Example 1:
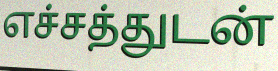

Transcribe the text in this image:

எச்சத்துடன்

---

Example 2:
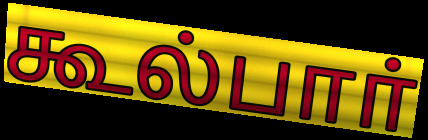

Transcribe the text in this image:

கூல்பார்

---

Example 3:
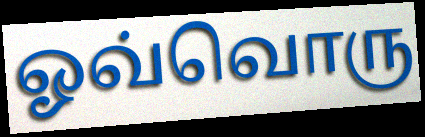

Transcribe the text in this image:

ஓவ்வொரு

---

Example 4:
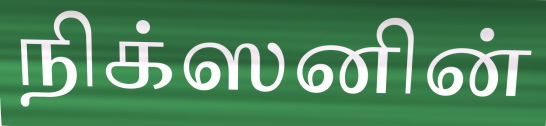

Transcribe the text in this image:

நிக்ஸனின்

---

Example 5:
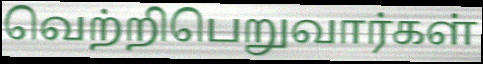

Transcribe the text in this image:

வெற்றிபெறுவார்கள்